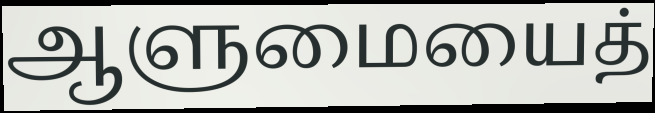
ஆளுமையைத்